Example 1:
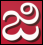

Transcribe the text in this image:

జి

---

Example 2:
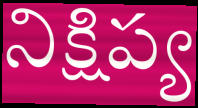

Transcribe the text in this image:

నిక్షిప్య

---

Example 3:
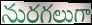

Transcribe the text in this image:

నురగలుగా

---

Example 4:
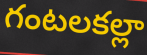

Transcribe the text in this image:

గంటలకల్లా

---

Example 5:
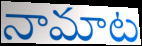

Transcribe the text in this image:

నామాట